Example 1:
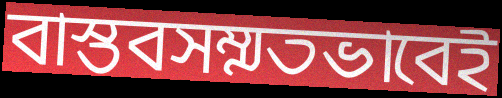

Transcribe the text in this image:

বাস্তবসম্মতভাবেই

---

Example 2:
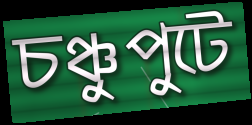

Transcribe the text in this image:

চঞ্চুপুটে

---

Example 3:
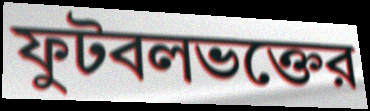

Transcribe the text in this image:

ফুটবলভক্তের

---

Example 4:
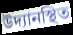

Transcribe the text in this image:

উদ্যানস্থিত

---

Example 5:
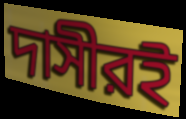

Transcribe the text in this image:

দাসীরই